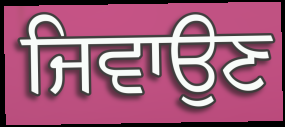
ਜਿਵਾਉਣ